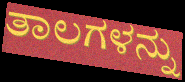
ತಾಲಗಳನ್ನು